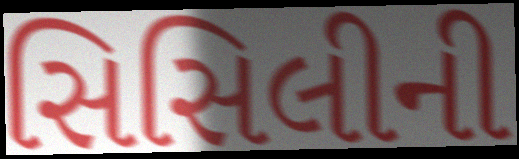
સિસિલીની